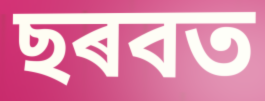
ছৰবত